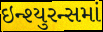
ઇન્શ્યુરન્સમાં